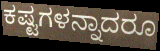
ಕಷ್ಟಗಳನ್ನಾದರೂ